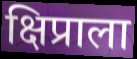
क्षिप्राला